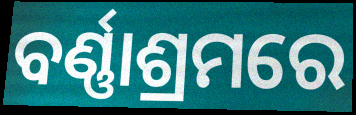
ବର୍ଣ୍ଣାଶ୍ରମରେ